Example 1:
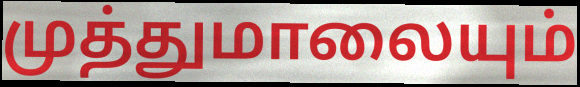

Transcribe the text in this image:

முத்துமாலையும்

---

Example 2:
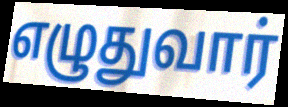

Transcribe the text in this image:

எழுதுவார்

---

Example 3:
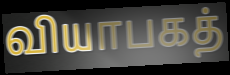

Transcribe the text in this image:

வியாபகத்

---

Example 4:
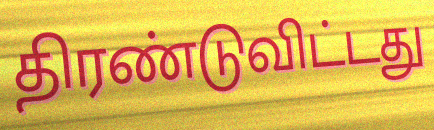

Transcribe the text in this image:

திரண்டுவிட்டது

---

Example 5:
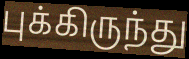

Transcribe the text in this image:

புக்கிருந்து